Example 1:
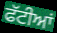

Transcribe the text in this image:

ਫੱਟੀਆਂ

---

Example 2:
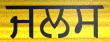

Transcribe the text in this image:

ਜਲਸ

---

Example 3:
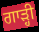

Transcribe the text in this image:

ਗਾੜ੍ਹੀ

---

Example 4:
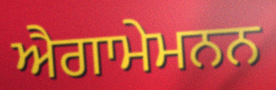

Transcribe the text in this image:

ਐਗਾਮੇਮਨਨ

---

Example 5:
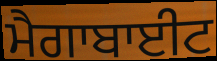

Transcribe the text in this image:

ਮੈਗਾਬਾਈਟ